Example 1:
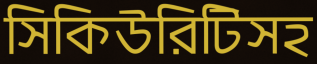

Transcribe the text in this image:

সিকিউরিটিসহ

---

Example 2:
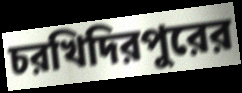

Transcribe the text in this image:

চরখিদিরপুরের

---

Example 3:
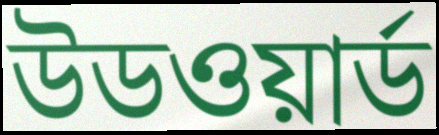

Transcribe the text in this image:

উডওয়ার্ড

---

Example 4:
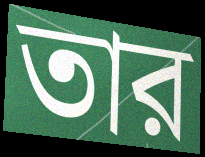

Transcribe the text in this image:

তার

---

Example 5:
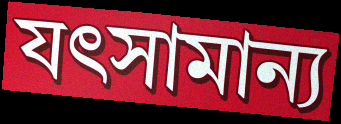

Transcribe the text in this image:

যৎসামান্য